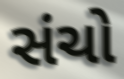
સંચો